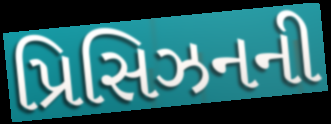
પ્રિસિઝનની